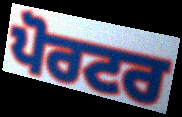
ਪੋਰਟਰ